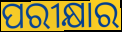
ପରୀକ୍ଷାର